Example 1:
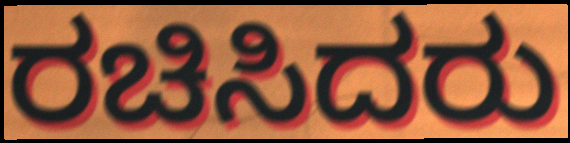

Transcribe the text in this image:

ರಚಿಸಿದರು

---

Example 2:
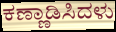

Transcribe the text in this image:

ಕಣ್ಣಾಡಿಸಿದಳು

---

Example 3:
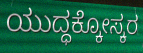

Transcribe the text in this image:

ಯುದ್ಧಕ್ಕೋಸ್ಕರ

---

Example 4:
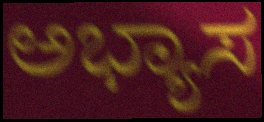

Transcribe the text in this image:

ಅಭ್ಯಾಸ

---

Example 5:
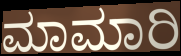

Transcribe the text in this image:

ಮಾಮಾರಿ